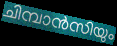
ചിമ്പാൻസിയും